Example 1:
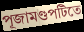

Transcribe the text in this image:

পূজামণ্ডপটিতে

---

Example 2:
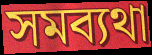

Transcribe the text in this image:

সমব্যথা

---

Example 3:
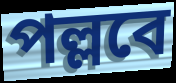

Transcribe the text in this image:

পল্লবে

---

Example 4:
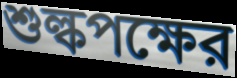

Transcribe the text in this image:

শুল্কপক্ষের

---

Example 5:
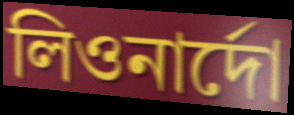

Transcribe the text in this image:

লিওনার্দো